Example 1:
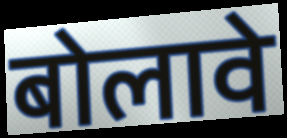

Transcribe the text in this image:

बोलावे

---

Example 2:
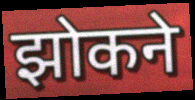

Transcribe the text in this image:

झोकने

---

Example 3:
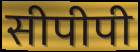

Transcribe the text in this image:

सीपीपी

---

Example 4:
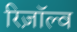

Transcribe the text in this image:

रिज़ॉल्व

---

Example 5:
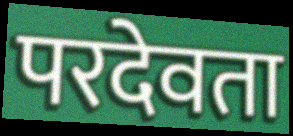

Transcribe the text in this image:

परदेवता